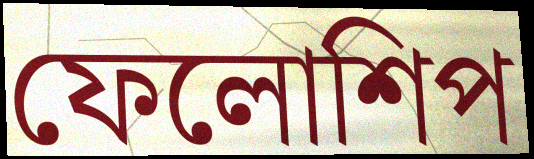
ফেলোশিপ